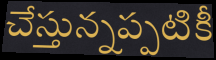
చేస్తున్నప్పటికీ